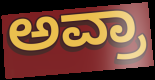
ಅವ್ರಾ